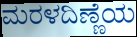
ಮರಳದಿಣ್ಣೆಯ